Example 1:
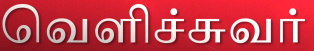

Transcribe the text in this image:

வெளிச்சுவர்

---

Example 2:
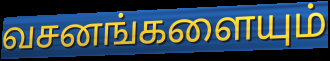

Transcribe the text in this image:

வசனங்களையும்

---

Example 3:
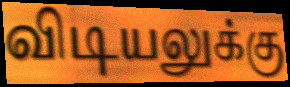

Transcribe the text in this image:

விடியலுக்கு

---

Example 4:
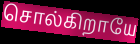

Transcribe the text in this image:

சொல்கிறாயே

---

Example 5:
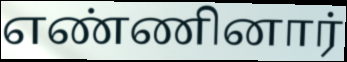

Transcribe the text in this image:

எண்ணினார்